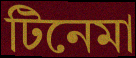
টিনেমা